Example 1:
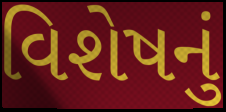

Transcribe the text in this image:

વિશેષનું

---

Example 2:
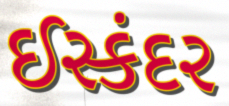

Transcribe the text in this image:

ઈસ્કંદર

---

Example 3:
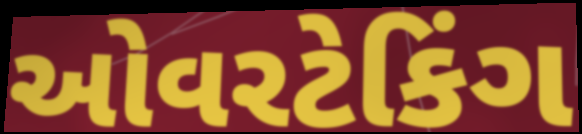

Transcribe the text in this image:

ઓવરટેકિંગ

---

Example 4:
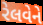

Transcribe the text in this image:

રેલવેને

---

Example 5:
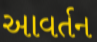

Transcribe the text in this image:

આવર્તન